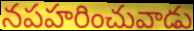
నపహరించువాడు